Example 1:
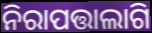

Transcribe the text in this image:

ନିରାପତ୍ତାଲାଗି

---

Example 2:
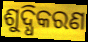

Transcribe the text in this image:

ଶୁଦ୍ଧିକରଣ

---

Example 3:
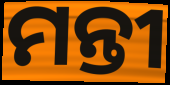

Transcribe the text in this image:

ମନ୍ତୀ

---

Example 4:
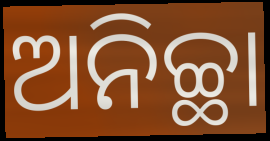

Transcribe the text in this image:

ଅନିଚ୍ଛା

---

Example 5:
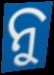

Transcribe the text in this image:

ନୁ